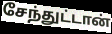
சேந்துட்டான்